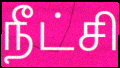
நீட்சி